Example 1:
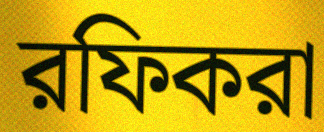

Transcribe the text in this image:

রফিকরা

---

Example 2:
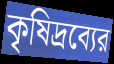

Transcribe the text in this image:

কৃষিদ্রব্যের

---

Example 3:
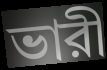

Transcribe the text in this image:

ভারী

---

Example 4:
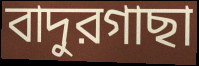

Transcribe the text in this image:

বাদুরগাছা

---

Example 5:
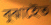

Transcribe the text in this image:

বুঝাইেত